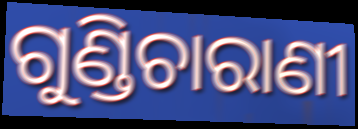
ଗୁଣ୍ଡିଚାରାଣୀ